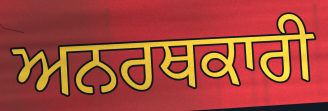
ਅਨਰਥਕਾਰੀ